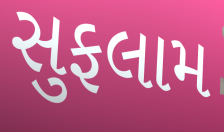
સુફલામ